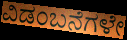
ವಿಡಂಬನೆಗಳೇ